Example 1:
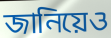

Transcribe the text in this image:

জানিয়েও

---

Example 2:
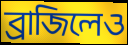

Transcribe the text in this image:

ব্রাজিলেও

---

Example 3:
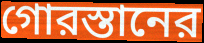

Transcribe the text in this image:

গোরস্তানের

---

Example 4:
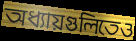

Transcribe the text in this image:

অধ্যায়গুলিতেও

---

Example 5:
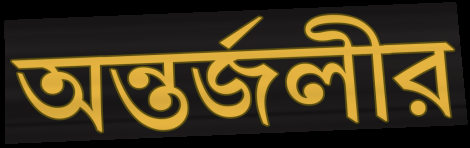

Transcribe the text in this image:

অন্তর্জলীর